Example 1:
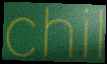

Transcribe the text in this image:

chil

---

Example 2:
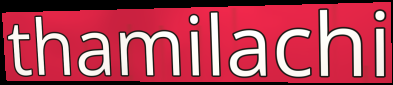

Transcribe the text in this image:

thamilachi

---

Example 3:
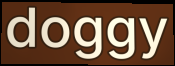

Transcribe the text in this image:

doggy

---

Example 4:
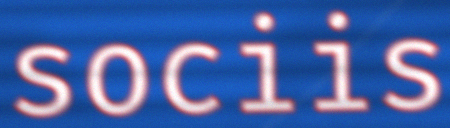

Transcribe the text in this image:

sociis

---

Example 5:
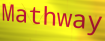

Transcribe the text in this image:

Mathway